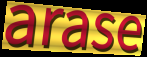
arase